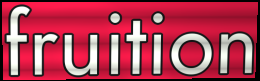
fruition